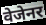
वेजेनर